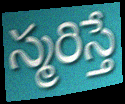
స్మరిస్తే